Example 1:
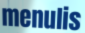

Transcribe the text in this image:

menulis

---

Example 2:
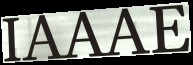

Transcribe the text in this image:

IAAAE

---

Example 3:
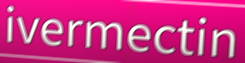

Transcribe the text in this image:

ivermectin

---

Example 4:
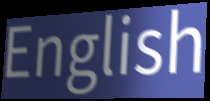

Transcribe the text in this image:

English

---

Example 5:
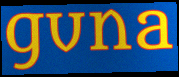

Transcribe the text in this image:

guna